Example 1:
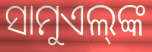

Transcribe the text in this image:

ସାମୁଏଲ୍‌ଙ୍କ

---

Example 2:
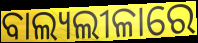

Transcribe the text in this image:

ବାଲ୍ୟଲୀଳାରେ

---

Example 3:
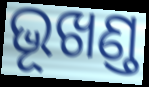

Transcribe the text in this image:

ଭୂଖଣ୍ଡ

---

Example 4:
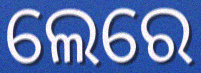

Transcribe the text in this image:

ଲେରେ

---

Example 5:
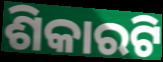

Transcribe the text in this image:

ଶିକାରଟି